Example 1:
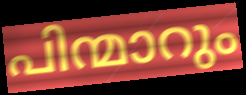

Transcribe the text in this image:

പിന്മാറും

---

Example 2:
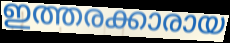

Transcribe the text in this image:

ഇത്തരക്കാരായ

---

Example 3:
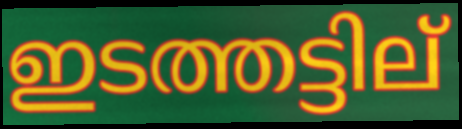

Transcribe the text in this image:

ഇടത്തട്ടില്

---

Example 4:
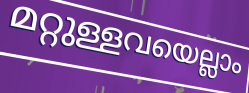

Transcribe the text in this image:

മറ്റുള്ളവയെല്ലാം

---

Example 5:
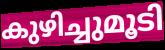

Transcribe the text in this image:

കുഴിച്ചുമൂടി